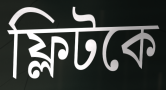
ফ্লিটকে